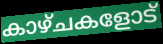
കാഴ്ചകളോട്